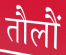
तौलौं